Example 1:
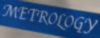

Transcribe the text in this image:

METROLOGY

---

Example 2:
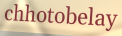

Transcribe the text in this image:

chhotobelay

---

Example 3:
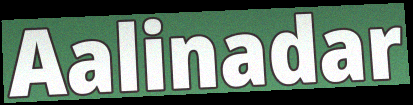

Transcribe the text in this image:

Aalinadar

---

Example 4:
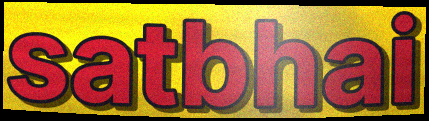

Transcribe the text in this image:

satbhai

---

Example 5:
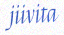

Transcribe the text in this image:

jiivita